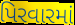
પિરવારમાં